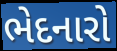
ભેદનારો